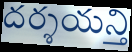
దర్శయన్తి